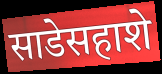
साडेसहाशे